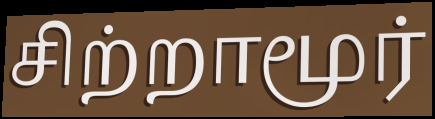
சிற்றாமூர்